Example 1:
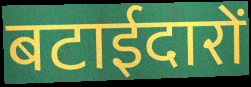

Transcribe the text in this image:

बटाईदारों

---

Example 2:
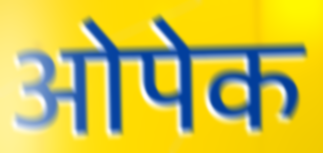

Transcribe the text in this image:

ओपेक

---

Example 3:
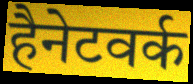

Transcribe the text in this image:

हैनेटवर्क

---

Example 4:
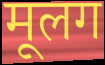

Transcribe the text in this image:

मूलग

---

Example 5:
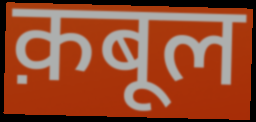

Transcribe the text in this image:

क़बूल